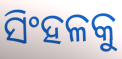
ସିଂହଳକୁ